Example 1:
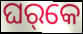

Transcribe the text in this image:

ଘର୍‌କେ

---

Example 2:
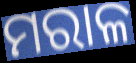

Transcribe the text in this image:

ମରାଳ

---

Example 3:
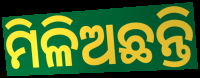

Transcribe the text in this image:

ମିଳିଅଛନ୍ତି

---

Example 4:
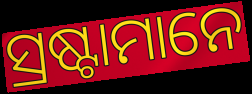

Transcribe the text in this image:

ସ୍ରଷ୍ଟାମାନେ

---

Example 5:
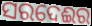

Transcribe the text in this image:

ସରଦେଈର